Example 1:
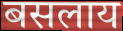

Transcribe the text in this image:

बसलाय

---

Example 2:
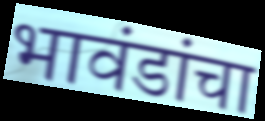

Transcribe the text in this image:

भावंडांचा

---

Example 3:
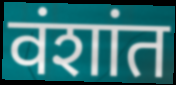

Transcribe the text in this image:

वंशांत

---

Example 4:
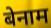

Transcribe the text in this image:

बेनाम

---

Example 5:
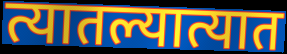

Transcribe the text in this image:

त्यातल्यात्यात